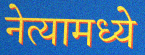
नेत्यामध्ये